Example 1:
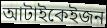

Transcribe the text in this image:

আটাইকেইজন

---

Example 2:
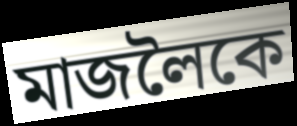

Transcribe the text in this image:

মাজলৈকে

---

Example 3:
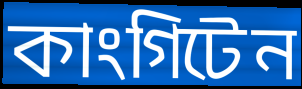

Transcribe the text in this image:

কাংগিটেন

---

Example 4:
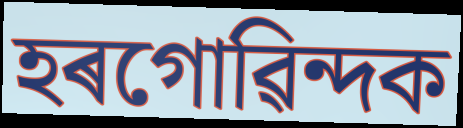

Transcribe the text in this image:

হৰগোৱিন্দক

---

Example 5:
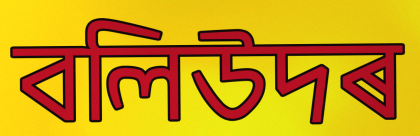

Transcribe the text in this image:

বলিউদৰ